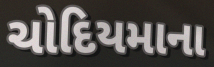
ચોદિયમાના